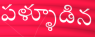
పళ్ళూడిన